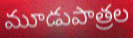
మూడుపాత్రల